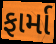
ફાર્મા